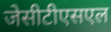
जेसीटीएसएल